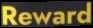
Reward